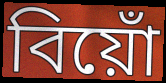
বিয়োঁ